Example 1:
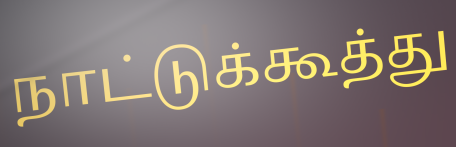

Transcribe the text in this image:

நாட்டுக்கூத்து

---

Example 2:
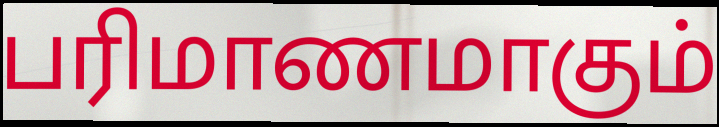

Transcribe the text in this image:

பரிமாணமாகும்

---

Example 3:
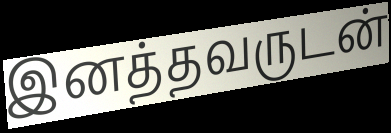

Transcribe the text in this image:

இனத்தவருடன்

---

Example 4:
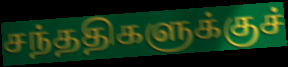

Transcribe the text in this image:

சந்ததிகளுக்குச்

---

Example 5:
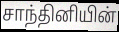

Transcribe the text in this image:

சாந்தினியின்